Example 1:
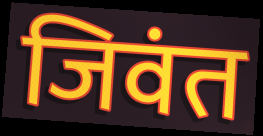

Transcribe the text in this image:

जिवंत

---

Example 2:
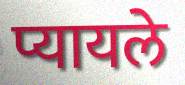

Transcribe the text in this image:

प्यायले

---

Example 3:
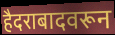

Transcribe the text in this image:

हैदराबादवरून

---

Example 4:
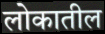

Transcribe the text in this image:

लोकातील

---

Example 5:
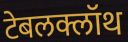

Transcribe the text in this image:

टेबलक्लॉथ